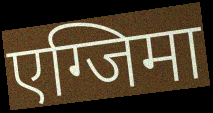
एग्जिमा